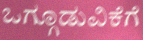
ಒಗ್ಗೂಡುವಿಕೆಗೆ